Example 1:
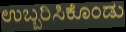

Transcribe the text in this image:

ಉಬ್ಬರಿಸಿಕೊಂಡು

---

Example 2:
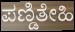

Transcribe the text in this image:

ಪಣ್ಡಿತೇಹಿ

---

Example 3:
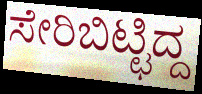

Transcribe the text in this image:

ಸೇರಿಬಿಟ್ಟಿದ್ದ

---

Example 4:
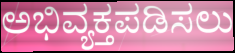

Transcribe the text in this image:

ಅಭಿವ್ಯಕ್ತಪಡಿಸಲು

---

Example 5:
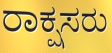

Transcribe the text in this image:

ರಾಕ್ಷಸರು